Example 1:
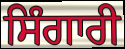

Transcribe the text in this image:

ਸਿੰਗਾਰੀ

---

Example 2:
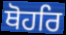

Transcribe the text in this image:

ਥੋਹਰਿ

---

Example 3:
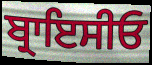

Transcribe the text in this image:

ਬ੍ਰਾਇਸੀਓ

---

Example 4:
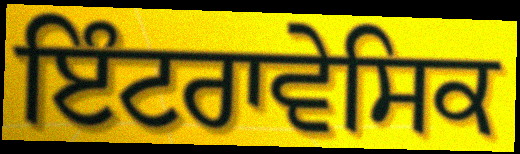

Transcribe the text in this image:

ਇੰਟਰਾਵੇਸਿਕ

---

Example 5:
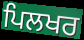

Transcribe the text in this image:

ਪਿਲਖਰ